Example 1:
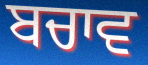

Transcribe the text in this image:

ਬਚਾਵ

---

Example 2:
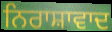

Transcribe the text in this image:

ਨਿਰਾਸ਼ਾਵਾਦ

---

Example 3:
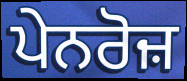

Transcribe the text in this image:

ਪੇਨਰੋਜ਼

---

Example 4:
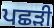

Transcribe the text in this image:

ਪਛੜੀ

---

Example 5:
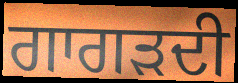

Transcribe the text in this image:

ਗਾਗੜਦੀ